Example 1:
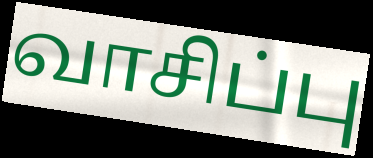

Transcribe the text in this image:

வாசிப்பு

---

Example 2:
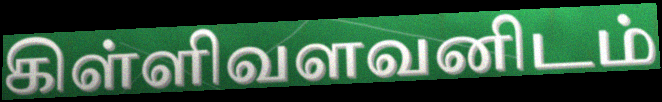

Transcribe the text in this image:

கிள்ளிவளவனிடம்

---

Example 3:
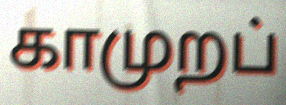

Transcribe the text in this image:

காமுறப்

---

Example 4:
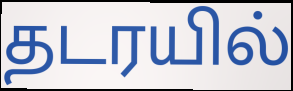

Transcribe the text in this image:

தடரயில்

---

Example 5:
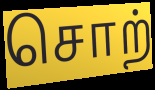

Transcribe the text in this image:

சொற்